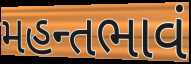
મહન્તભાવં